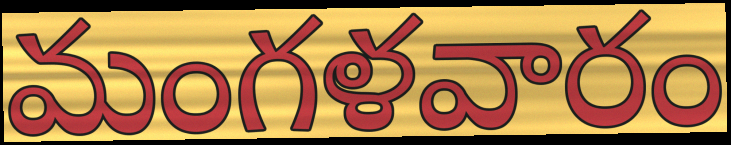
మంగళవారం